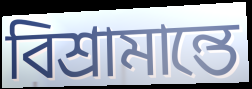
বিশ্রামান্তে